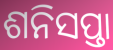
ଶନିସପ୍ତା